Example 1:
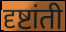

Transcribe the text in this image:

दृष्टांती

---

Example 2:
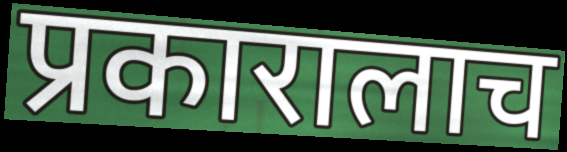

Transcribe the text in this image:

प्रकारालाच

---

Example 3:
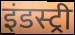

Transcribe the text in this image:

इंडस्ट्री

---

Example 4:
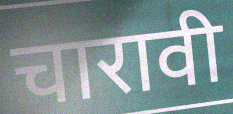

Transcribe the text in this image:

चारावी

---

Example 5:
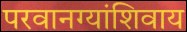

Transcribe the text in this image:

परवानग्यांशिवाय